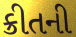
ક્રીતની